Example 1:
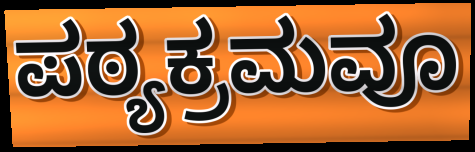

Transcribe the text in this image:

ಪಠ್ಯಕ್ರಮವೂ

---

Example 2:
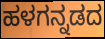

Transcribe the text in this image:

ಹಳಗನ್ನಡದ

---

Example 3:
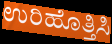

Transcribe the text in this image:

ಉರಿಹೊತ್ತಿಸಿ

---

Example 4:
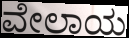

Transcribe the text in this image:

ವೇಲಾಯ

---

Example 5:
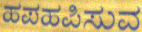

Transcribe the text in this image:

ಹಪಹಪಿಸುವ